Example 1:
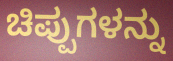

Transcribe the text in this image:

ಚಿಪ್ಪುಗಳನ್ನು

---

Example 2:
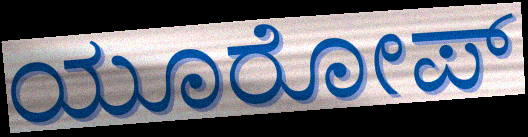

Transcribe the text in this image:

ಯೂರೋಪ್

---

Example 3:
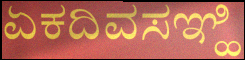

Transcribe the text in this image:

ಏಕದಿವಸಞ್ಹಿ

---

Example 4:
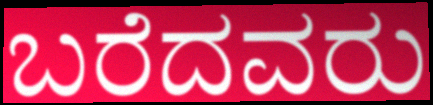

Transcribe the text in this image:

ಬರೆದವರು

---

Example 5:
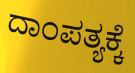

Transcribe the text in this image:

ದಾಂಪತ್ಯಕ್ಕೆ